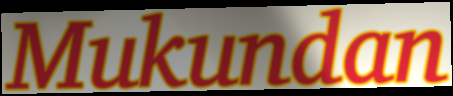
Mukundan